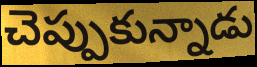
చెప్పుకున్నాడు